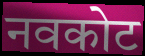
नवकोट